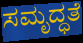
ಸಮೃದ್ಧತೆ